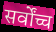
सर्वोंच्च